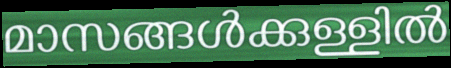
മാസങ്ങൾക്കുള്ളിൽ